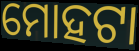
ମୋହଟା